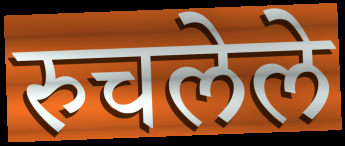
रुचलेले